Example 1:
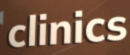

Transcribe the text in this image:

clinics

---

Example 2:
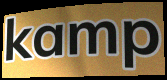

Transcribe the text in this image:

kamp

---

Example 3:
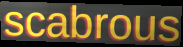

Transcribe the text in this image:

scabrous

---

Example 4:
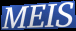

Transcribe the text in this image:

MEIS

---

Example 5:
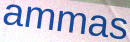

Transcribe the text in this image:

ammas